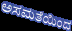
ಅಸಮತೆಯಿಂದ